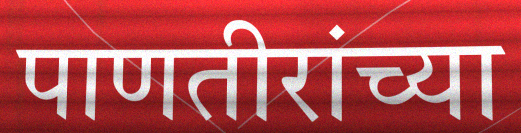
पाणतीरांच्या